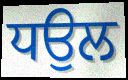
ਧਉਲ